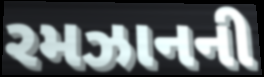
રમઝાનની